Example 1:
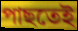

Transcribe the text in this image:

পাছতেই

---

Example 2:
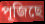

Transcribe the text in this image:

পূজিছে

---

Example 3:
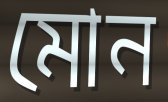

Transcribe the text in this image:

মোন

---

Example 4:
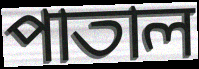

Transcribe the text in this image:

পাতাল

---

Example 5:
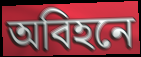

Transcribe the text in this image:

অবিহনে